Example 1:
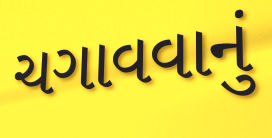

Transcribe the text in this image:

ચગાવવાનું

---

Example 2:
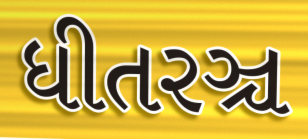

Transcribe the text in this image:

ધીતરઞ્ચ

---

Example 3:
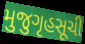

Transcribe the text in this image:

મુજુગૃહસૂચી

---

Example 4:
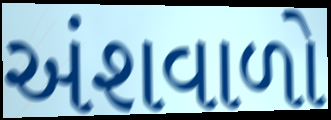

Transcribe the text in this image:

અંશવાળો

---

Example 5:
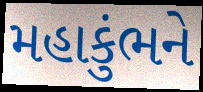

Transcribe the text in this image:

મહાકુંભને